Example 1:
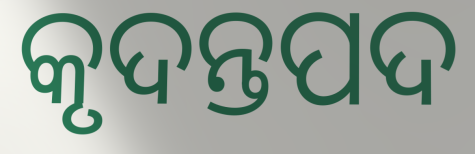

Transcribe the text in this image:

କୃଦନ୍ତପଦ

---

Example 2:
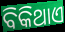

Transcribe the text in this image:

ବିକିଥାଏ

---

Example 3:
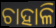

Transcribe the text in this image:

ଚାହାଳି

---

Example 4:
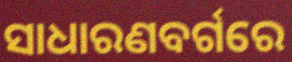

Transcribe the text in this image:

ସାଧାରଣବର୍ଗରେ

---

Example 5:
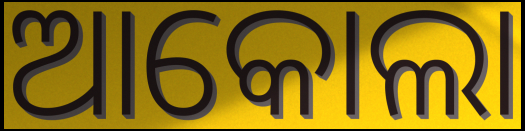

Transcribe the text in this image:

ଆକୋଲା